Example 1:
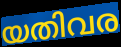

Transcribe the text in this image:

യതിവര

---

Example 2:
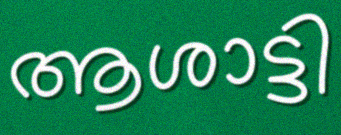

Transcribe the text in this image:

ആശാട്ടി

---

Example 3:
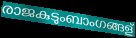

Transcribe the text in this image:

രാജകുടുംബാംഗങ്ങള്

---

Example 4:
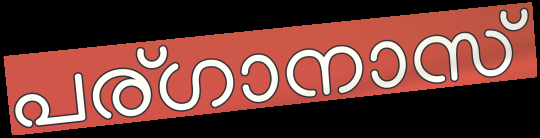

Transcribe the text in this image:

പര്ഗാനാസ്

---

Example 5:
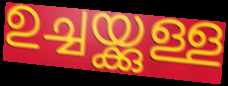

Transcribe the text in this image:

ഉച്ചയ്ക്കുള്ള